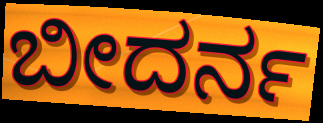
ಬೀದರ್ನ